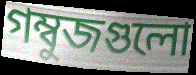
গম্বুজগুলো